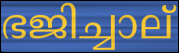
ഭജിച്ചാല്